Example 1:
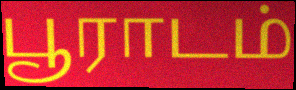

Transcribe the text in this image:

பூராடம்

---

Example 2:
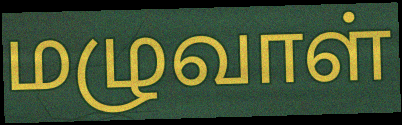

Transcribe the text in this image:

மழுவாள்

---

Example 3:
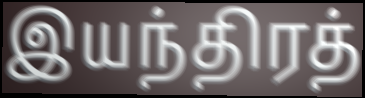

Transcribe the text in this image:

இயந்திரத்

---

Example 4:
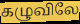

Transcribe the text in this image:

கழுவிலே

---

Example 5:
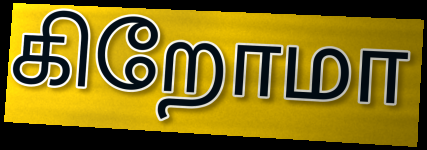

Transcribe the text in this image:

கிறோமா